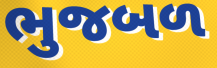
ભુજબળ